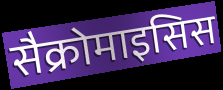
सैक्रोमाइसिस